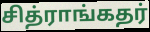
சித்ராங்கதர்